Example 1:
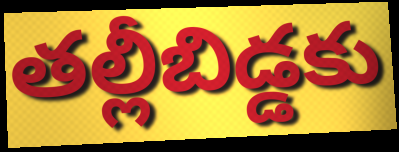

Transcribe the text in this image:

తల్లీబిడ్డకు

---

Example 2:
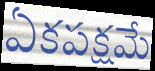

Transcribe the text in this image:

ఏకపక్షమే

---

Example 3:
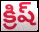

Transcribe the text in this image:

క్రిష్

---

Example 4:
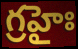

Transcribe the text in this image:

గ్రహైః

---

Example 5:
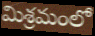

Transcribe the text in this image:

మిశ్రమంలో